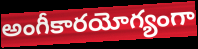
అంగీకారయోగ్యంగా